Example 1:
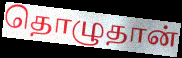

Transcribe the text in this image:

தொழுதான்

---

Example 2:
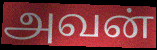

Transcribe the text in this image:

அவன்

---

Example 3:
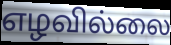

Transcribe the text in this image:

எழவில்லை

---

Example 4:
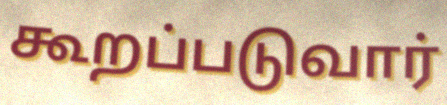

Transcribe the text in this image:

கூறப்படுவார்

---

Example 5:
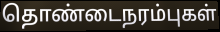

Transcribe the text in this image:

தொண்டைநரம்புகள்